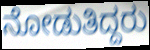
ನೋಡುತಿದ್ದರು